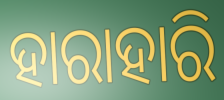
ହାରାହାରି